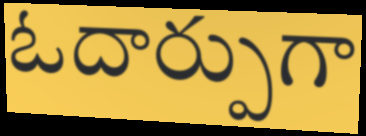
ఓదార్పుగా